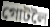
গোটলৈ